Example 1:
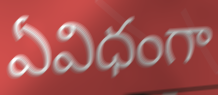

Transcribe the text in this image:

ఏవిధంగా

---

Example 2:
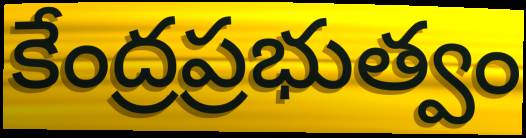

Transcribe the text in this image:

కేంద్రప్రభుత్వం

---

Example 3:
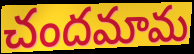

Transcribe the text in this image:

చందమామ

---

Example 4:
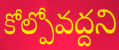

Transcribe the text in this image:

కోల్పోవద్దని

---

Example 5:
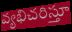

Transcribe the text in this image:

వ్యభిచరిస్తూ